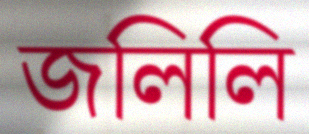
জলিলি